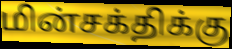
மின்சக்திக்கு